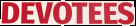
DEVOTEES